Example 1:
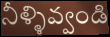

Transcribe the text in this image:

నీళ్ళివ్వండి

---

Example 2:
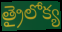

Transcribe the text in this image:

త్రైలోక్య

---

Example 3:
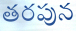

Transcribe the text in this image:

తరపున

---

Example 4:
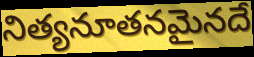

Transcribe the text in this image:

నిత్యనూతనమైనదే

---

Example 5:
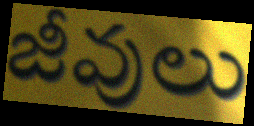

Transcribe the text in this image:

జీవులు